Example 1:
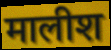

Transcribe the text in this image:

मालीश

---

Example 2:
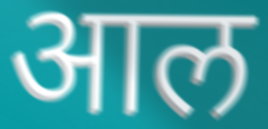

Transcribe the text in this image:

आल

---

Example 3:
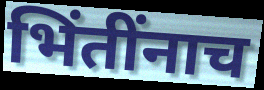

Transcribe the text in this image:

भिंतींनाच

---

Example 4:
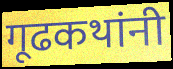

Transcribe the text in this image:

गूढकथांनी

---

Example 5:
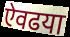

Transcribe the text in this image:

ऐवढया